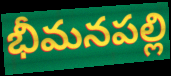
భీమనపల్లి